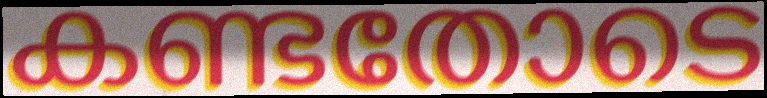
കണ്ടതോടെ